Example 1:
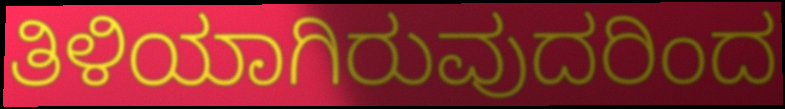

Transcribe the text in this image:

ತಿಳಿಯಾಗಿರುವುದರಿಂದ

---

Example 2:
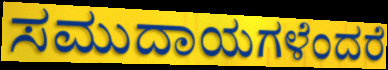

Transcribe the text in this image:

ಸಮುದಾಯಗಳೆಂದರೆ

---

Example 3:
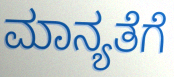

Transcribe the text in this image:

ಮಾನ್ಯತೆಗೆ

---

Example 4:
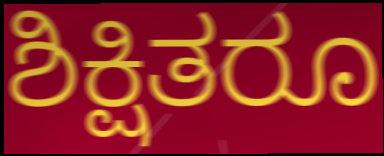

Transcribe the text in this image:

ಶಿಕ್ಷಿತರೂ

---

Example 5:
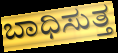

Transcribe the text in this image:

ಬಾಧಿಸುತ್ತ